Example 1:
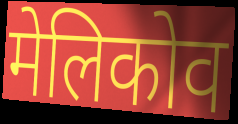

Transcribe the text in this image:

मेलिकोव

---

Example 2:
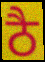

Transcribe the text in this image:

ठै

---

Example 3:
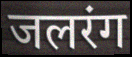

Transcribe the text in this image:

जलरंग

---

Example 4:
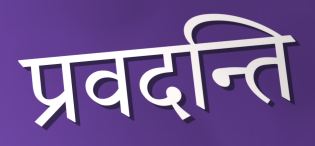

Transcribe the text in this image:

प्रवदन्ति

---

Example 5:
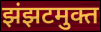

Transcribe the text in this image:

झंझटमुक्त